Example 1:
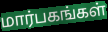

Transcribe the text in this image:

மார்பகங்கள்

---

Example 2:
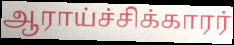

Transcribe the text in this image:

ஆராய்ச்சிக்காரர்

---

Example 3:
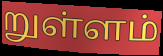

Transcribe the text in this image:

றுள்ளம்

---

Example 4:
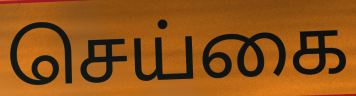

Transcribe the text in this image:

செய்கை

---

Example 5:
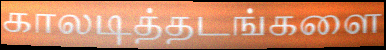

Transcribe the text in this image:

காலடித்தடங்களை